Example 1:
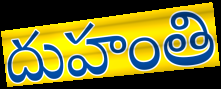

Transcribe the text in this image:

దుహంతి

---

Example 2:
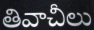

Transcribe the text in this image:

తివాచీలు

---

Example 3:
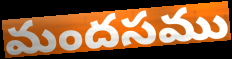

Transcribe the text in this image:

మందసము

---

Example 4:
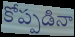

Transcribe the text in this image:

కోప్పడినా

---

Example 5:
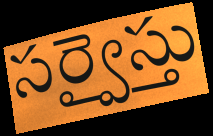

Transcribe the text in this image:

సర్వైస్తు